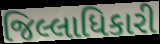
જિલ્લાધિકારી